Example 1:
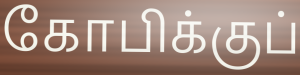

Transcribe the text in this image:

கோபிக்குப்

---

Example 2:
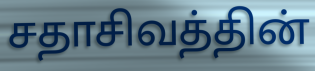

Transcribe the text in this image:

சதாசிவத்தின்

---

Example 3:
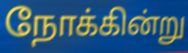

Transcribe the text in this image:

நோக்கின்று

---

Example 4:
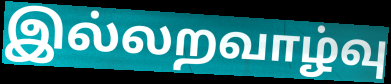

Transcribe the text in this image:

இல்லறவாழ்வு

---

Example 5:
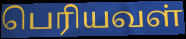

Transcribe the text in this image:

பெரியவள்